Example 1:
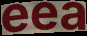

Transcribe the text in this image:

eea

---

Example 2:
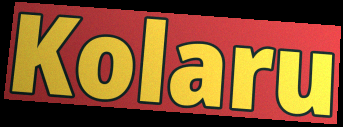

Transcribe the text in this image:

Kolaru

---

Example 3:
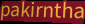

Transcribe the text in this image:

pakirntha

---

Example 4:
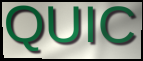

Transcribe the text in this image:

QUIC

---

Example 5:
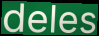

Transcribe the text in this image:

deles